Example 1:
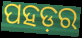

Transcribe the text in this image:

ପହଡ଼ର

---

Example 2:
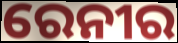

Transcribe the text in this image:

ରେନୀର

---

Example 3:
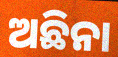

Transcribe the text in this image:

ଅଛିନା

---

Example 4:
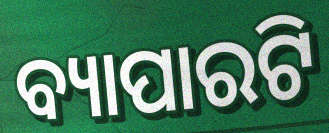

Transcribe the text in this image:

ବ୍ୟାପାରଟି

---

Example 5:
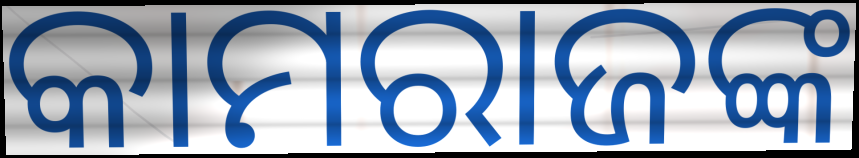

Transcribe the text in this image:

କାମରାଜଙ୍କ